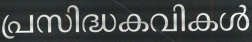
പ്രസിദ്ധകവികൾ